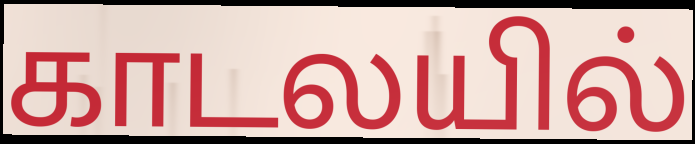
காடலயில்